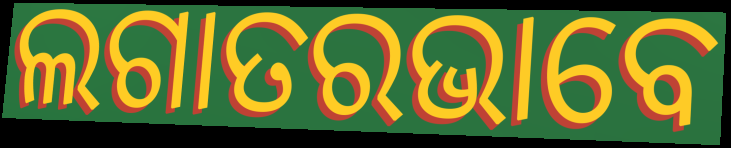
ଲଗାତରଭାବେ